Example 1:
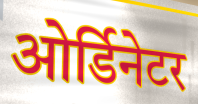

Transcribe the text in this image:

ओर्डिनेटर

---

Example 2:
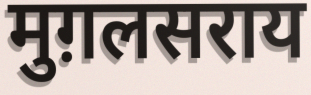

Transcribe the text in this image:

मुग़लसराय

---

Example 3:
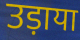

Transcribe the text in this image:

उड़ाया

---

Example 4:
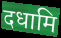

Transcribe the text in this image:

दधामि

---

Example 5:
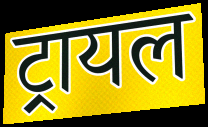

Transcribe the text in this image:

ट्रायल